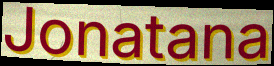
Jonatana